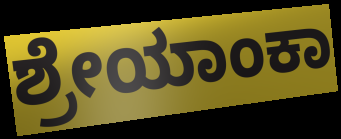
ಶ್ರೇಯಾಂಕಾ